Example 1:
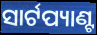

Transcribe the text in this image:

ସାର୍ଟପ୍ୟାଣ୍ଟ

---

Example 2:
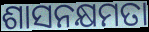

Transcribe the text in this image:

ଶାସନକ୍ଷମତା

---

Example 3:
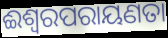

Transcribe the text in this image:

ଈଶ୍ୱରପରାୟଣତା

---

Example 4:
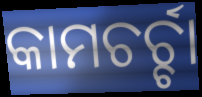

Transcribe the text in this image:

କାମଚର୍ଚ୍ଚା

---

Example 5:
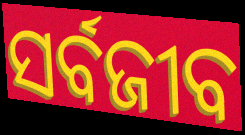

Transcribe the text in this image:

ସର୍ବଜୀବ